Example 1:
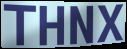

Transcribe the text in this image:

THNX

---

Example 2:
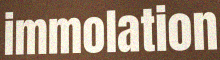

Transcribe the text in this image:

immolation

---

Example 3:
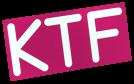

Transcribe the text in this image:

KTF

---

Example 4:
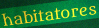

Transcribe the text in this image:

habitatores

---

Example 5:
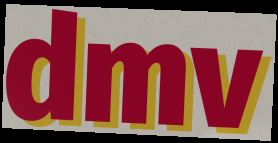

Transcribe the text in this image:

dmv